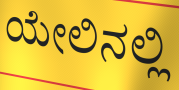
ಯೇಲಿನಲ್ಲಿ